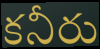
కనీరు